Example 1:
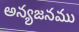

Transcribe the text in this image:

అన్యజనము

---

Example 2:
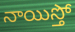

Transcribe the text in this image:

నాయిస్తో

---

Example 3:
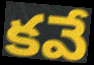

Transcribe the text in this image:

కవే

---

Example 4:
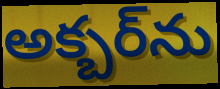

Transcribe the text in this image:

అక్బర్‌ను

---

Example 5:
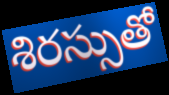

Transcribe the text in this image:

శిరస్సుతో